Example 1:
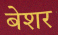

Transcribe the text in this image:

बेशर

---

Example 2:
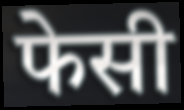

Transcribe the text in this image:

फेसी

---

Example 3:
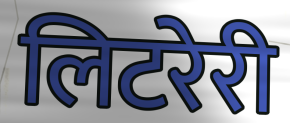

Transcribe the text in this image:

लिटरेरी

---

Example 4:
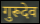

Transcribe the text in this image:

गुरूदेव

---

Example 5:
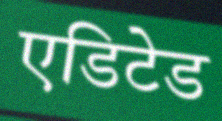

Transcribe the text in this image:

एडिटेड